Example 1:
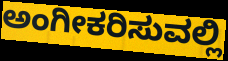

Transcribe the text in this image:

ಅಂಗೀಕರಿಸುವಲ್ಲಿ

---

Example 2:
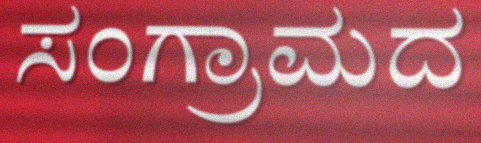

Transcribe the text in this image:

ಸಂಗ್ರಾಮದ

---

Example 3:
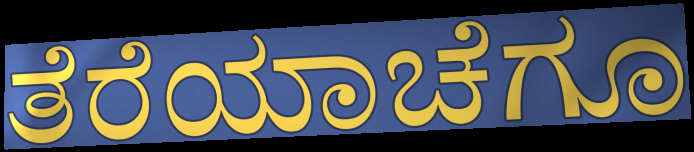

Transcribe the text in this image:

ತೆರೆಯಾಚೆಗೂ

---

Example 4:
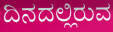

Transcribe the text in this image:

ದಿನದಲ್ಲಿರುವ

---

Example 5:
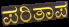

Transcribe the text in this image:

ಪರಿತಾಪ